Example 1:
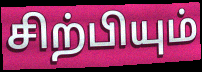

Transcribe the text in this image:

சிற்பியும்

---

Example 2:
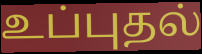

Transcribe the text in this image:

உப்புதல்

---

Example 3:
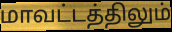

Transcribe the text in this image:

மாவட்டத்திலும்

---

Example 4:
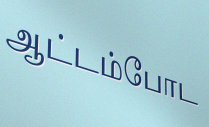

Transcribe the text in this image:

ஆட்டம்போட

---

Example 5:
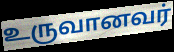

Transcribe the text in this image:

உருவானவர்